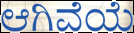
ಆಗಿವೆಯೆ